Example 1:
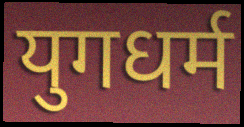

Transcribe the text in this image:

युगधर्म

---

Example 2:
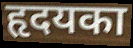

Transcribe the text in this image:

हृदयका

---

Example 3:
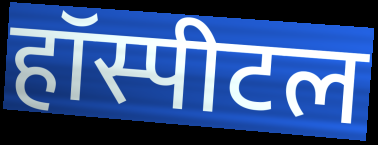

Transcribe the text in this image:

हॉस्पीटल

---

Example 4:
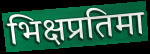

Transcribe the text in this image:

भिक्षप्रतिमा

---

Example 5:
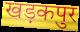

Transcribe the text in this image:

खड़कपुर